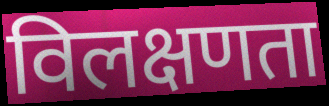
विलक्षणता